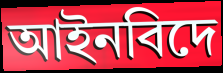
আইনবিদে